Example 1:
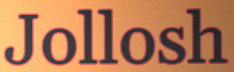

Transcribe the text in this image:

Jollosh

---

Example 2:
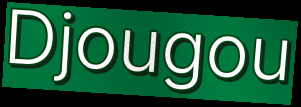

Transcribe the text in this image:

Djougou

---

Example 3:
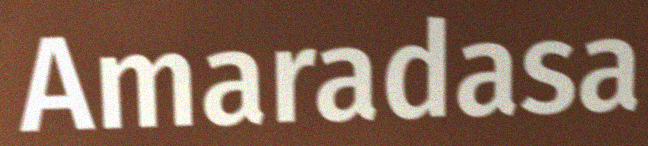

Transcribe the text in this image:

Amaradasa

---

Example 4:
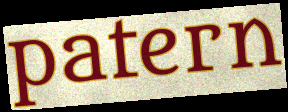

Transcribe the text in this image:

patern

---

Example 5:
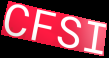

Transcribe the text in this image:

CFSI